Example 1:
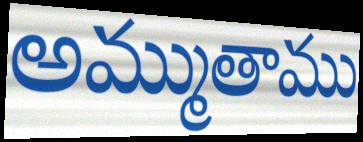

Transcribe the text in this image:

అమ్ముతాము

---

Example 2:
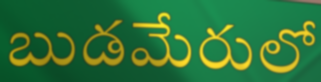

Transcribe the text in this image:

బుడమేరులో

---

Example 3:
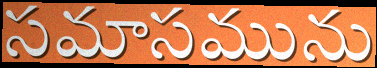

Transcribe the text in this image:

సమాసమును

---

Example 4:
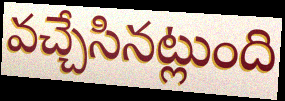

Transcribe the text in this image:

వచ్చేసినట్లుంది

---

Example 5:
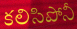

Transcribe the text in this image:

కలిసిపోనీ